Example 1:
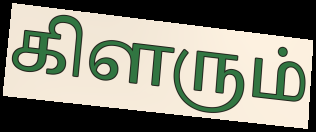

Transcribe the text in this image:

கிளரும்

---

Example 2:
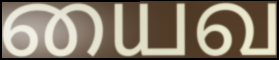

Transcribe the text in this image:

யைவ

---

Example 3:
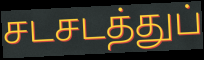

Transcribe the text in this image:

சடசடத்துப்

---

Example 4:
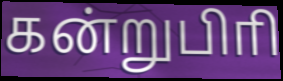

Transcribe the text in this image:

கன்றுபிரி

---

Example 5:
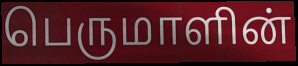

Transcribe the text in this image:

பெருமாளின்